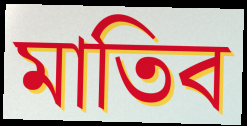
মাতিব